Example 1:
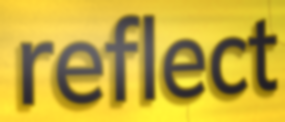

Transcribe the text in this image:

reflect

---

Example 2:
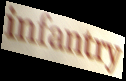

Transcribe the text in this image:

infantry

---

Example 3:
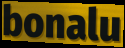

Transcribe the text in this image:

bonalu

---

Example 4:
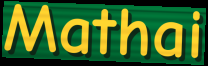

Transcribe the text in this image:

Mathai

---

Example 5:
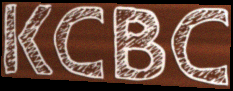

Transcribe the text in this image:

KCBC